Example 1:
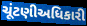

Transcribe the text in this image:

ચૂંટણીઅધિકારી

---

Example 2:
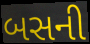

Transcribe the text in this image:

બસની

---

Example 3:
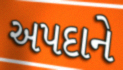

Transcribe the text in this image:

અપદાને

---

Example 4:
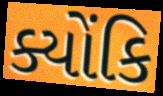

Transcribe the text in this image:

ક્યોંકિ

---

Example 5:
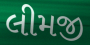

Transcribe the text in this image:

લીમજી